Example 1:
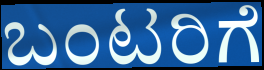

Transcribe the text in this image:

ಬಂಟರಿಗೆ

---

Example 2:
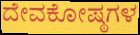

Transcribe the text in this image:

ದೇವಕೋಷ್ಠಗಳ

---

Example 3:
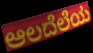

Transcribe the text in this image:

ಆಲದೆಲೆಯ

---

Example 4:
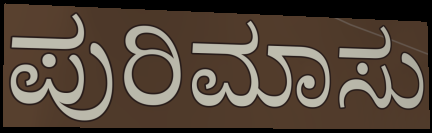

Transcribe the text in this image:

ಪುರಿಮಾಸು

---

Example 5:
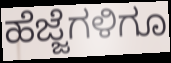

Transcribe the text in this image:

ಹೆಜ್ಜೆಗಳಿಗೂ